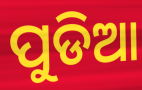
ପୁଡିଆ